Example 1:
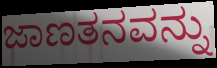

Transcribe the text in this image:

ಜಾಣತನವನ್ನು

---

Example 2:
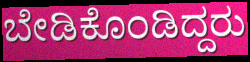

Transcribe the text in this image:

ಬೇಡಿಕೊಂಡಿದ್ದರು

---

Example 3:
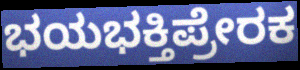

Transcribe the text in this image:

ಭಯಭಕ್ತಿಪ್ರೇರಕ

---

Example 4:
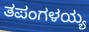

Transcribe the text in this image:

ತಪಂಗಳಯ್ಯ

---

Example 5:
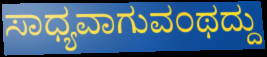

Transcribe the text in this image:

ಸಾಧ್ಯವಾಗುವಂಥದ್ದು